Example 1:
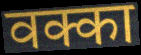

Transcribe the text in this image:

वक्का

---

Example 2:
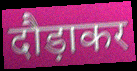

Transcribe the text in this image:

दौड़ाकर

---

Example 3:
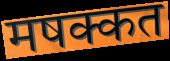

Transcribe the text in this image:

मषक्कत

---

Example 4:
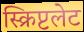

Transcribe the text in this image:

स्क्रिप्टलेट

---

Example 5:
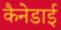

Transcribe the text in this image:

कैनेडाई